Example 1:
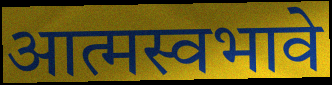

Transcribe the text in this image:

आत्मस्वभावे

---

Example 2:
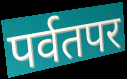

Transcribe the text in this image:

पर्वतपर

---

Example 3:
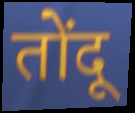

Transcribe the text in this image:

तोंदू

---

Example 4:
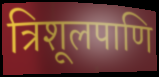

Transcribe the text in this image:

त्रिशूलपाणि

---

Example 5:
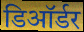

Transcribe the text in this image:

डिऑर्डर